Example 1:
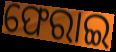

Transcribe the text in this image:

ଫେରାଇ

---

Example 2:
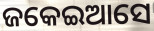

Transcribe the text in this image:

ଜକେଇଆସେ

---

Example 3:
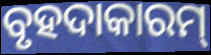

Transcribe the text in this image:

ବୃହଦାକାରମ୍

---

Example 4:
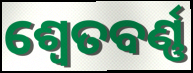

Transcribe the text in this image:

ଶ୍ୱେତବର୍ଣ୍ଣ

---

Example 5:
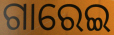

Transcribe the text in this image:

ଗାରେଇ